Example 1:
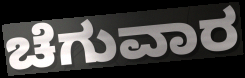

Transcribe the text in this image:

ಚೆಗುವಾರ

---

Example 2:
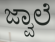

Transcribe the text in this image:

ಜ್ವಾಲೆ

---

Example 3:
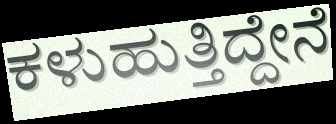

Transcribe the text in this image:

ಕಳುಹುತ್ತಿದ್ದೇನೆ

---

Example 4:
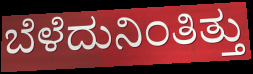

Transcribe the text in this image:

ಬೆಳೆದುನಿಂತಿತ್ತು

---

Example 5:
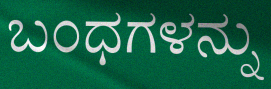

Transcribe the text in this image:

ಬಂಧಗಳನ್ನು